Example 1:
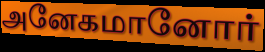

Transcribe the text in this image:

அனேகமானோர்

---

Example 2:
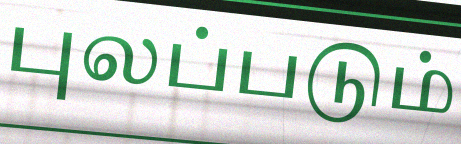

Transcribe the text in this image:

புலப்படும்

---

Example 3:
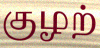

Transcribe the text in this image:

குழற்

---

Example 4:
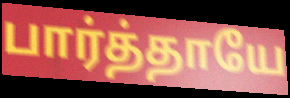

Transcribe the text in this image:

பார்த்தாயே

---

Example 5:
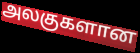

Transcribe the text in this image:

அலகுகளான